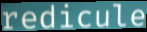
redicule